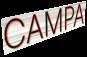
CAMPA